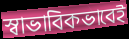
স্বাভাবিকভাবেই